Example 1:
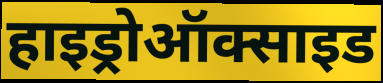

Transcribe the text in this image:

हाइड्रोऑक्साइड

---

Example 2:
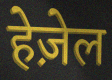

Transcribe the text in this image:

हेज़ेल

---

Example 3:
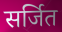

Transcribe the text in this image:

सर्जित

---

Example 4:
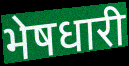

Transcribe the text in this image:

भेषधारी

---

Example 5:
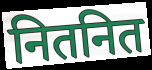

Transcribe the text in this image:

नितनित